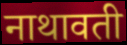
नाथावती